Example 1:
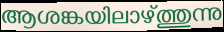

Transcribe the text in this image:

ആശങ്കയിലാഴ്ത്തുന്നു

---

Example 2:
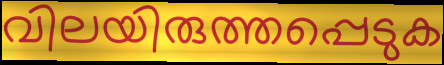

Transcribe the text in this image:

വിലയിരുത്തപ്പെടുക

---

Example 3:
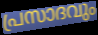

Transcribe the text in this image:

പ്രസാദവും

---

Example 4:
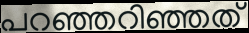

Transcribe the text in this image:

പറഞ്ഞറിഞ്ഞത്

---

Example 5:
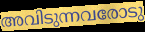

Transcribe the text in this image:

അവിടുന്നവരോടു